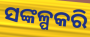
ସଙ୍କଳ୍ପକରି